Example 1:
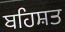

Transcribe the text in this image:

ਬਹਿਸ਼ਤ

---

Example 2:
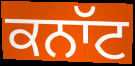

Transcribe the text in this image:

ਕਨਾੱਟ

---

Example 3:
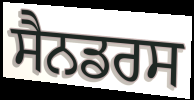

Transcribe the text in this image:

ਸੈਨਡਰਸ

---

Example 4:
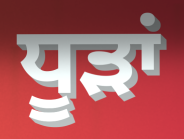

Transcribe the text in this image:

ਧੂਡ਼ਾਂ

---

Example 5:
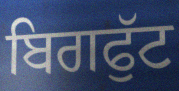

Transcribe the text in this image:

ਬਿਗਫੁੱਟ